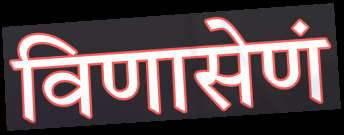
विणासेणं